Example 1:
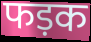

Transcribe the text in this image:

फड़क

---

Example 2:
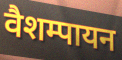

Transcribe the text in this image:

वैशम्पायन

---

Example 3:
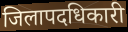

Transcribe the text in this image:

जिलापदधिकारी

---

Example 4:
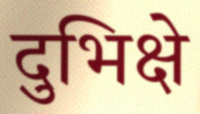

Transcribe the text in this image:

दुभिक्षे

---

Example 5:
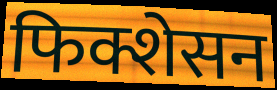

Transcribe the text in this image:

फिक्शेसन